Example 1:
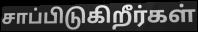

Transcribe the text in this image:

சாப்பிடுகிறீர்கள்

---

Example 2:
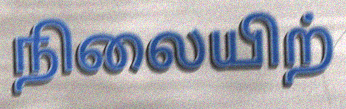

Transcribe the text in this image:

நிலையிற்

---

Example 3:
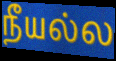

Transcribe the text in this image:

நீயல்ல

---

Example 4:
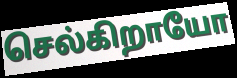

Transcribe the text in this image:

செல்கிறாயோ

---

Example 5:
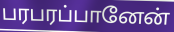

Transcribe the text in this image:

பரபரப்பானேன்